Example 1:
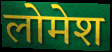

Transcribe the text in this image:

लोमेश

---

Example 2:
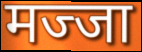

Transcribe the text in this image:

मज्जा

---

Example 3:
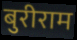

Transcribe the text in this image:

बुरीराम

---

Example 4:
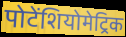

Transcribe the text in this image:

पोटेंशियोमेट्रिक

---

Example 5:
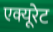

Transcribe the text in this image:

एक्यूरेट